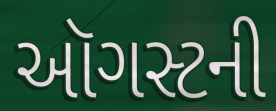
ઑગસ્ટની